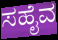
ಸಹೈವ